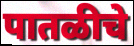
पातळीचे